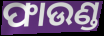
ଫାଉଣ୍ଡ